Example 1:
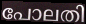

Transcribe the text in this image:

പോലതി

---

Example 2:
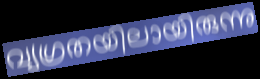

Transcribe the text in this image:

വ്യഗ്രതയിലായിരുന്നു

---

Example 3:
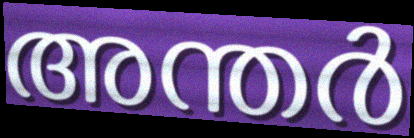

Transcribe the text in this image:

അന്തർ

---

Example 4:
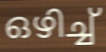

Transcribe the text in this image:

ഒഴിച്ച്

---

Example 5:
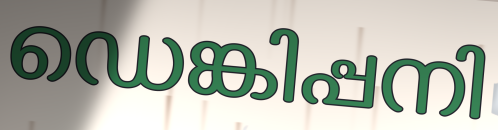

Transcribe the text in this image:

ഡെങ്കിപ്പനി